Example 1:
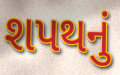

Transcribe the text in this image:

શપથનું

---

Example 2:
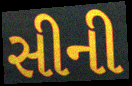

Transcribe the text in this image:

સીની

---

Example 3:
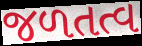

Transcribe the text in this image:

જળતત્વ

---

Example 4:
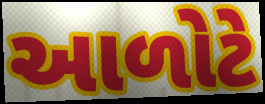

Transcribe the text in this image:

આળોટે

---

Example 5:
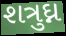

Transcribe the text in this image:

શત્રુઘ્ન